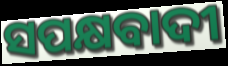
ସପକ୍ଷବାଦୀ